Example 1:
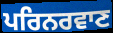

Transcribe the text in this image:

ਪਰਿਨਰਵਾਣ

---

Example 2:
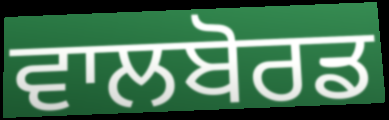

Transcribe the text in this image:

ਵਾਲਬੋਰਡ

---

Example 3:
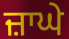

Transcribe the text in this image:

ਜ਼ਾਘੇ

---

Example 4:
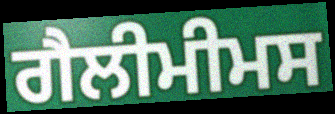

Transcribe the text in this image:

ਗੈਲੀਮੀਮਸ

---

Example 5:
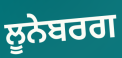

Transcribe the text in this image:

ਲੂਨੇਬਰਗ